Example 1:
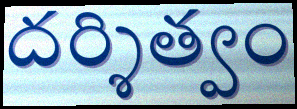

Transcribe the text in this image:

దర్శిత్వం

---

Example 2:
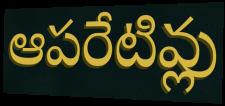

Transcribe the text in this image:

ఆపరేటివ్లు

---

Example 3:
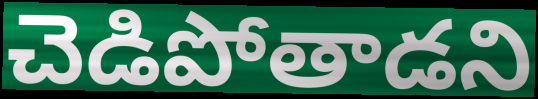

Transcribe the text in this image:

చెడిపోతాడని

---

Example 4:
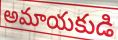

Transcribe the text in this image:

అమాయకుడి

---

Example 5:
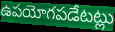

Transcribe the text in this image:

ఉపయోగపడేటట్లు